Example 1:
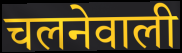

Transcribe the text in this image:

चलनेवाली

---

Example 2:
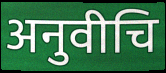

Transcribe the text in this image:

अनुवीचि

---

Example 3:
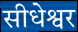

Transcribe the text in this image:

सीधेश्वर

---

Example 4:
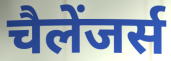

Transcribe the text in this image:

चैलेंजर्स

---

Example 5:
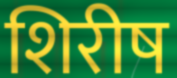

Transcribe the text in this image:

शिरीष